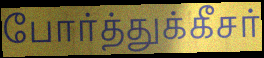
போர்த்துக்கீசர்